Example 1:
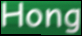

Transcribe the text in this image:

Hong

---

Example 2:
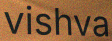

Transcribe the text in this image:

vishva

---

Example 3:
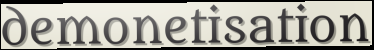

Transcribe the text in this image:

demonetisation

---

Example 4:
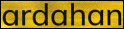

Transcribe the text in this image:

ardahan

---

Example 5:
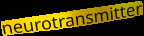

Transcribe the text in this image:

neurotransmitter